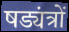
षड्यंत्रों